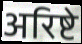
अरिष्टे